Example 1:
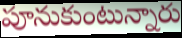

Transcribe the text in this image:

పూనుకుంటున్నారు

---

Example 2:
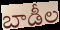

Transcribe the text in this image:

బాడీల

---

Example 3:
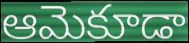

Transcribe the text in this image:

ఆమెకూడా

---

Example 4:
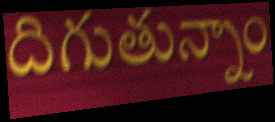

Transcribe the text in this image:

దిగుతున్నాం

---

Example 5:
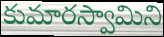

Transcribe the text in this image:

కుమారస్వామిని